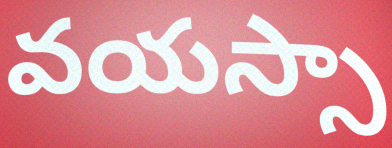
వయస్సా